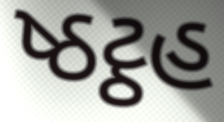
ષ્ઠટ્ઠહ